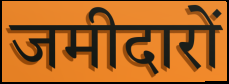
जमीदारों